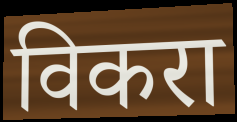
विकरा